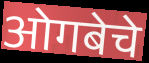
ओगबेचे